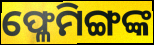
ଫ୍ଳେମିଙ୍ଗଙ୍କ